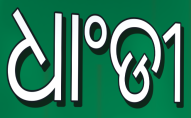
ଧାଂଡୀ